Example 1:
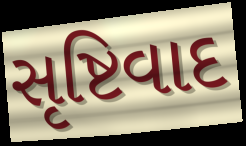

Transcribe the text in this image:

સૃષ્ટિવાદ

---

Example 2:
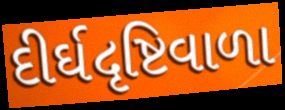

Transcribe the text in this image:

દીર્ઘદૃષ્ટિવાળા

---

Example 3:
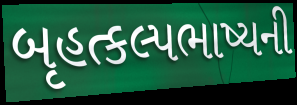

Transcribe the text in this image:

બૃહત્કલ્પભાષ્યની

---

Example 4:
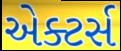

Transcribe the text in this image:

એક્ટર્સ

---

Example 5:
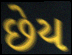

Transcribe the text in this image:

છેય